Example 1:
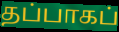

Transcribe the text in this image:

தப்பாகப்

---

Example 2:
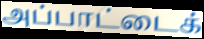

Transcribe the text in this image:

அப்பாட்டைக்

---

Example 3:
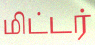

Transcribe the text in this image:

மிட்டர்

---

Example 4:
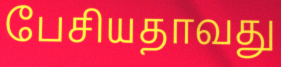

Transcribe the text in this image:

பேசியதாவது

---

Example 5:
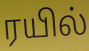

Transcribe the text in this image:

ரயில்